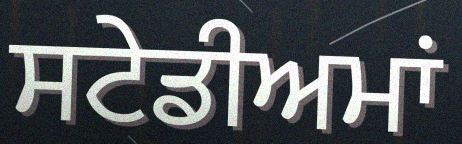
ਸਟੇਡੀਅਮਾਂ